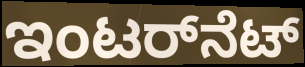
ಇಂಟರ್‌ನೆಟ್